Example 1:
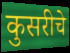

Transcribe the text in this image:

कुसरीचे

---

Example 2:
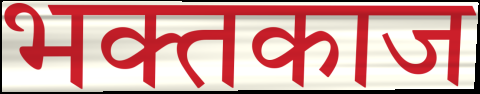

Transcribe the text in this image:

भक्तकाज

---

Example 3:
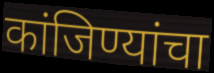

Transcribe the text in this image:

कांजिण्यांचा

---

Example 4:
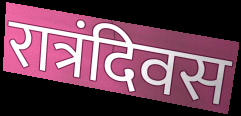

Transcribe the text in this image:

रात्रंदिवस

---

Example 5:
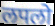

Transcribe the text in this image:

लपलो